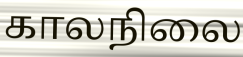
காலநிலை